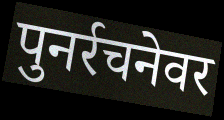
पुनर्रचनेवर